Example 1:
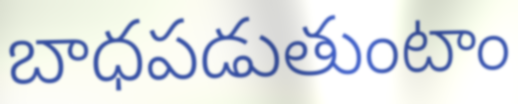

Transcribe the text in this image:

బాధపడుతుంటాం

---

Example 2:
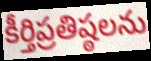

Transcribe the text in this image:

కీర్తిప్రతిష్ఠలను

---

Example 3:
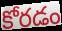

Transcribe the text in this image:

కోరడం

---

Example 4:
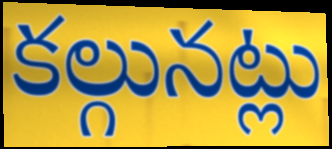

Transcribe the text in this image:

కల్గునట్లు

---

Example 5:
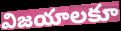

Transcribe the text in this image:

విజయాలకూ